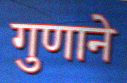
गुणाने